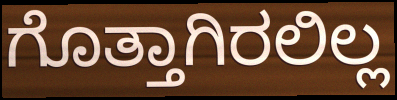
ಗೊತ್ತಾಗಿರಲಿಲ್ಲ